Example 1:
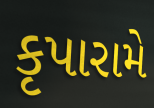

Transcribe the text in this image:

કૃપારામે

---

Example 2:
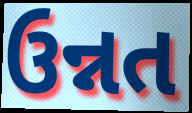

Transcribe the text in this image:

ઉન્નત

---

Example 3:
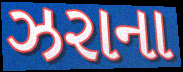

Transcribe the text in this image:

ઝરાના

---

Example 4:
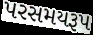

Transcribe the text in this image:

પરસમયરૂપ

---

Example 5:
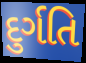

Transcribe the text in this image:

દુર્ગતિ